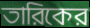
তারিকের